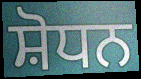
ਸ਼ੋਧਨ